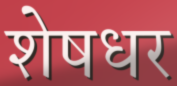
शेषधर